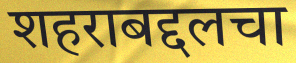
शहराबद्दलचा